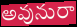
అవునురా